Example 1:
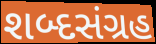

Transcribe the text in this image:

શબ્દસંગ્રહ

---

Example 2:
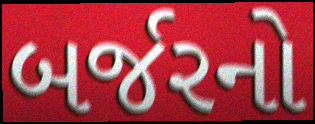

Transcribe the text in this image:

બર્જરનો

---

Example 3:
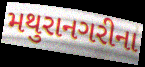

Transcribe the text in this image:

મથુરાનગરીના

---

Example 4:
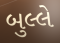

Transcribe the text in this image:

બુલ્લે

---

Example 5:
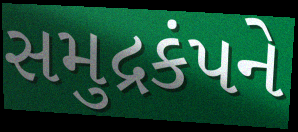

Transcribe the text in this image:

સમુદ્રકંપને